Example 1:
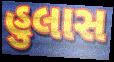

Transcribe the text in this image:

હુલાસ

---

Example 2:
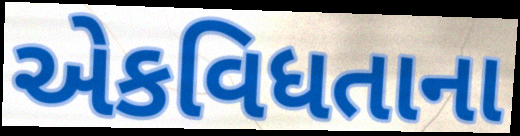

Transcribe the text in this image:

એકવિધતાના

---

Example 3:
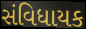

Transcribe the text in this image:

સંવિધાયક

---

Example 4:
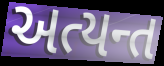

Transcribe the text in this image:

અત્યન્ત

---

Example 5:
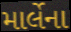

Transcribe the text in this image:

માર્લેના